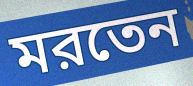
মরতেন